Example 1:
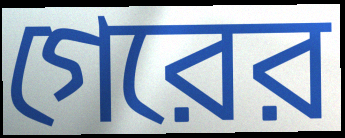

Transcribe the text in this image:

গেরের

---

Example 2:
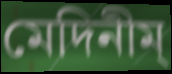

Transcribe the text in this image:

মেদিনীম্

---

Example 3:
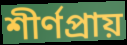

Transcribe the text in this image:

শীর্ণপ্রায়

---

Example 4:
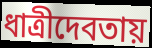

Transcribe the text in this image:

ধাত্রীদেবতায়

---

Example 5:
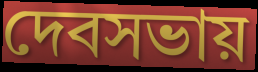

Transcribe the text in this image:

দেবসভায়